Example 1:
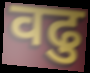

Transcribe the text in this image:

वढु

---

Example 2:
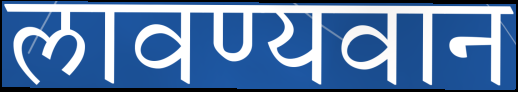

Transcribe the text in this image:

लावण्यवान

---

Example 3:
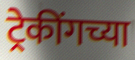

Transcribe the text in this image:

ट्रेकींगच्या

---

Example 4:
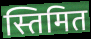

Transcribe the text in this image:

स्तिमित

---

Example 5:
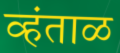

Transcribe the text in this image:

व्हंताळ